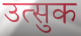
उत्सुक